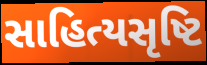
સાહિત્યસૃષ્ટિ